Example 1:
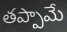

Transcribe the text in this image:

తప్పామే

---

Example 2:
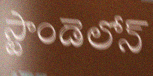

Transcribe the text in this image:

స్టాండెలోన్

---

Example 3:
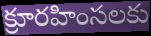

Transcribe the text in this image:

క్రూరహింసలకు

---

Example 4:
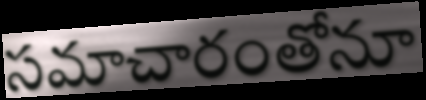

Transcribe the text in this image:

సమాచారంతోనూ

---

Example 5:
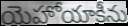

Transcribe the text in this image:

యెహోయాకీను